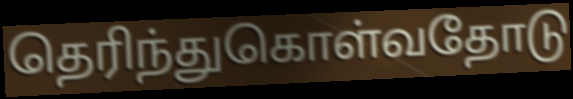
தெரிந்துகொள்வதோடு